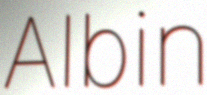
Albin